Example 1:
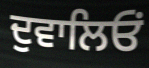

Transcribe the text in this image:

ਦੁਵਾਲਿਓਂ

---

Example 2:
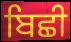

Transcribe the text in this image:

ਬਿਛੀ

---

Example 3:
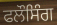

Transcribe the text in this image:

ਫਲੌਸਿੰਗ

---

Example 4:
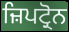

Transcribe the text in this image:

ਜ਼ਿਪਟ੍ਰੋਨ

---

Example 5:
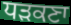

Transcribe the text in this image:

ਧੜਕਣਾ